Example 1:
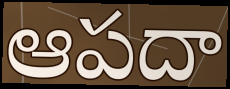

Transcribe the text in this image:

ఆపదా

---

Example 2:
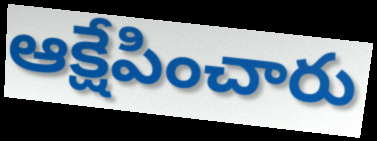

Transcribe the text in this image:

ఆక్షేపించారు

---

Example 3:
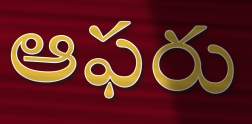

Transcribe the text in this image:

ఆఫరు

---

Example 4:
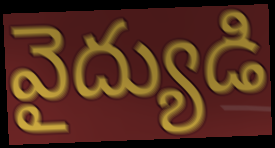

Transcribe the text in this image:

వైద్యుడి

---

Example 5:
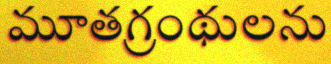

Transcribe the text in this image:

మూతగ్రంథులను